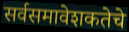
सर्वसमावेशकतेचे